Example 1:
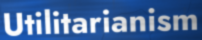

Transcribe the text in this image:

Utilitarianism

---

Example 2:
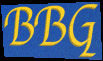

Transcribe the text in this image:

BBG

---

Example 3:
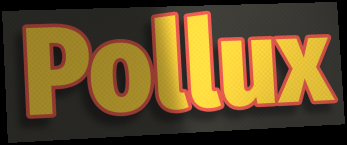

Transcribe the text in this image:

Pollux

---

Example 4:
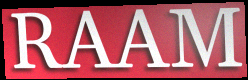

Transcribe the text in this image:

RAAM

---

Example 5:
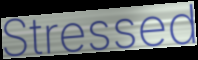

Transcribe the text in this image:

Stressed